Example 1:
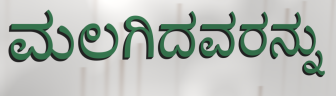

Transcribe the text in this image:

ಮಲಗಿದವರನ್ನು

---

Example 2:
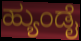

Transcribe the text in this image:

ಹ್ಯುಂಡೈ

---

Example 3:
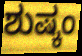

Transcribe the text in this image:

ಶುಷ್ಕಂ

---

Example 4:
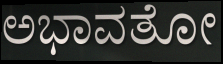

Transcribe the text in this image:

ಅಭಾವತೋ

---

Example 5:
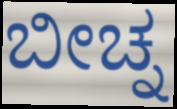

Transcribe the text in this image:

ಬೀಚ್ನ